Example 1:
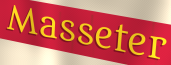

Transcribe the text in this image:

Masseter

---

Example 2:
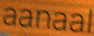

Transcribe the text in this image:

aanaal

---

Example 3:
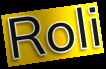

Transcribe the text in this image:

Roli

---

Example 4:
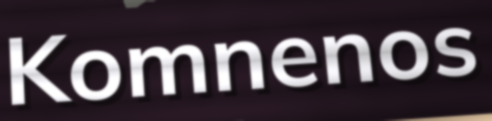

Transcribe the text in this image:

Komnenos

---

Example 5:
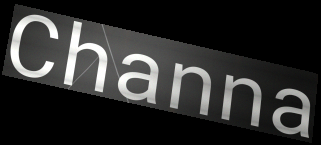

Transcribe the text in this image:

Channa